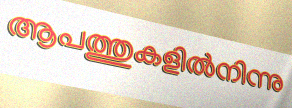
ആപത്തുകളിൽനിന്നു